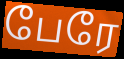
பேரே